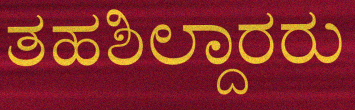
ತಹಶಿಲ್ದಾರರು